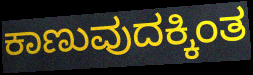
ಕಾಣುವುದಕ್ಕಿಂತ